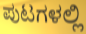
ಪುಟಗಳಲ್ಲಿ